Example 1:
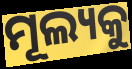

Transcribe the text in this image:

ମୂଲ୍ୟକୁ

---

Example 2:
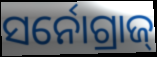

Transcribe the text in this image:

ସର୍ନୋଗ୍ରାଜ୍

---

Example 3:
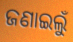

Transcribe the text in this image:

ଜଣାଇଲୁଁ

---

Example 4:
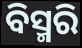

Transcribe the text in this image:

ବିସ୍ମରି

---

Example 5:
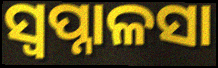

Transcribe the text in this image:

ସ୍ୱପ୍ନାଳସା